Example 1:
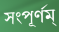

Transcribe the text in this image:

সংপূর্ণম্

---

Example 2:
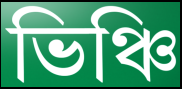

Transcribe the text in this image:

ভিঞ্চি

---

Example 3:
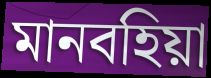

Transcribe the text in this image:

মানবহিয়া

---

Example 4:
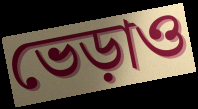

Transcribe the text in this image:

ভেড়াও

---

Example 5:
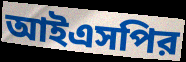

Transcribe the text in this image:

আইএসপির